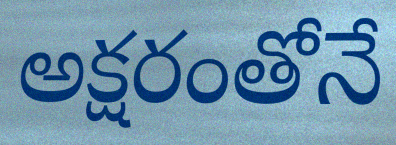
అక్షరంతోనే